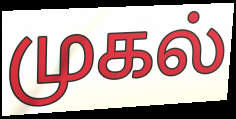
முகல்